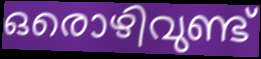
ഒരൊഴിവുണ്ട്